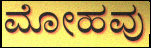
ಮೋಹವು